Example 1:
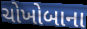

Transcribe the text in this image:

ચોખોબાના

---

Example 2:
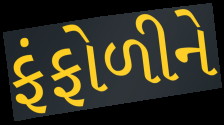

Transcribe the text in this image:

ફંફોળીને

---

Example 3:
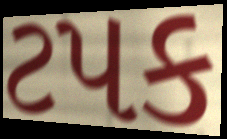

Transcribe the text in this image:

ટપક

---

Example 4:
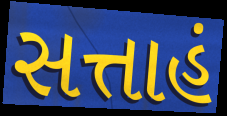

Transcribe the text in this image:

સત્તાહં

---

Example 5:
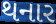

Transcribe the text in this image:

થનાર